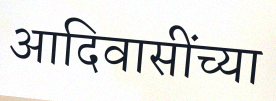
आदिवासींच्या